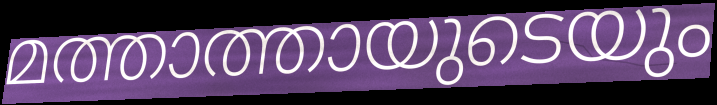
മത്താത്തായുടെയും